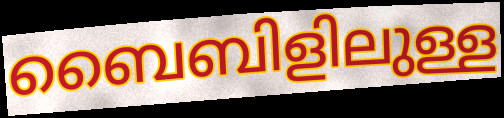
ബൈബിളിലുള്ള